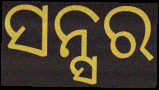
ସନ୍ସର